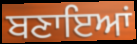
ਬਣਾਇਆਂ